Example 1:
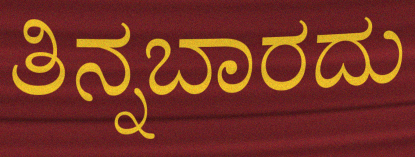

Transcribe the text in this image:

ತಿನ್ನಬಾರದು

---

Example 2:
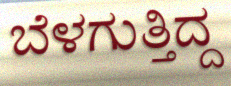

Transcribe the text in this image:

ಬೆಳಗುತ್ತಿದ್ದ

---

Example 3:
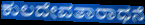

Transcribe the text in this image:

ಕುಲದೇವತಾರಾಧನೆ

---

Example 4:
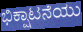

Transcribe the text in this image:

ಭಿಕ್ಷಾಟನೆಯು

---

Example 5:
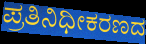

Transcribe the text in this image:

ಪ್ರತಿನಿಧೀಕರಣದ